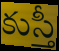
కుస్తీ